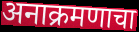
अनाक्रमणाचा